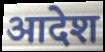
आदेश